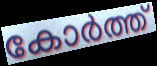
കോർത്ത്